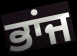
ਭਾਂਜ